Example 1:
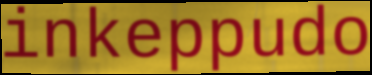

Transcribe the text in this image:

inkeppudo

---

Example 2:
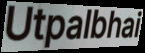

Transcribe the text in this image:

Utpalbhai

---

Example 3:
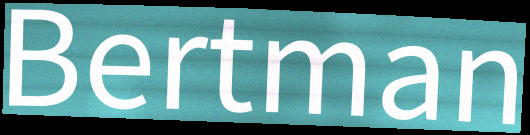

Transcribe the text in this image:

Bertman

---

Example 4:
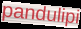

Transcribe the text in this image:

pandulipi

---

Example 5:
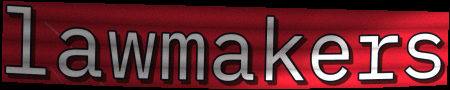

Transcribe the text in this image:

lawmakers